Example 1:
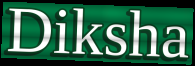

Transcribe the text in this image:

Diksha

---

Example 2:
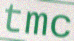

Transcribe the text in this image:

tmc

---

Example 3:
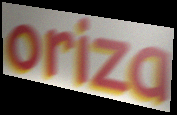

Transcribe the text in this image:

oriza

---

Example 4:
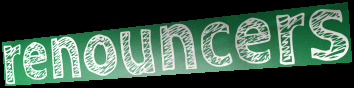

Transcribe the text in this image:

renouncers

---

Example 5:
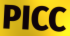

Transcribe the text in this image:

PICC